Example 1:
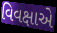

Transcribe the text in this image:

વિવક્ષાએ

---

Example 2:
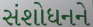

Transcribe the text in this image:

સંશોધનને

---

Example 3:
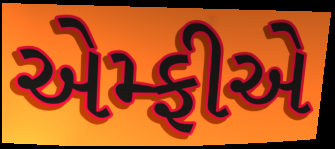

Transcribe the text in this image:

એમ્ફીએ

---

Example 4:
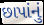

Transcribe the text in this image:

છાપાંનું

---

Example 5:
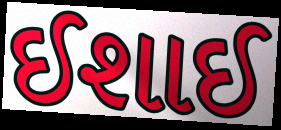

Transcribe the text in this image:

ઈશાઈ